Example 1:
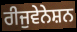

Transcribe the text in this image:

ਰੀਜੁਵੇਨੇਸ਼ਨ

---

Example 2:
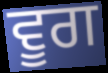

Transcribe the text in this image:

ਵੂਗ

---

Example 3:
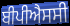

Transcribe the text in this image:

ਬੀਪੀਐਸਸੀ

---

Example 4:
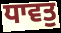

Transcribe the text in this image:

ਧਾਵਤੁ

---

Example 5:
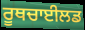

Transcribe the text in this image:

ਰੂਥਚਾਈਲਡ